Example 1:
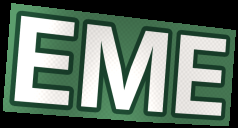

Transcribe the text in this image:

EME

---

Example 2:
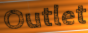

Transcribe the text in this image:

Outlet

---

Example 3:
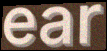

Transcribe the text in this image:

ear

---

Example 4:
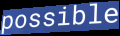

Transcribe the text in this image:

possible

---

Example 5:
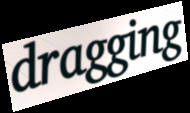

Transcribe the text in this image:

dragging